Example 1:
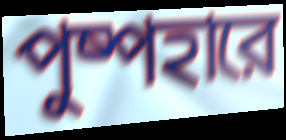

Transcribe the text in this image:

পুষ্পহারে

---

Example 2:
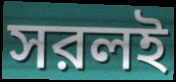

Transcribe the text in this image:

সরলই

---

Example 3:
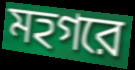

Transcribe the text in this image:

মহগরে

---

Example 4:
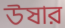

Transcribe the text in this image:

উষার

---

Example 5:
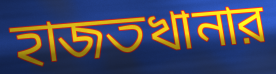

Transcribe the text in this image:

হাজতখানার